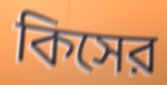
কিসের